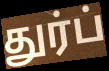
துர்ப்